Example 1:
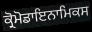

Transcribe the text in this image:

ਕ੍ਰੋਮੋਡਾਇਨਾਮਿਕਸ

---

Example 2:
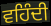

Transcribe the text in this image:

ਵਹਿੰਦੀ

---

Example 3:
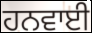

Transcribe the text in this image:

ਹਨਵਾਈ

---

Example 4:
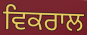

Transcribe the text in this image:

ਵਿਕਰਾਲ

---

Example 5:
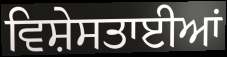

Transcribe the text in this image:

ਵਿਸ਼ੇਸਤਾਈਆਂ